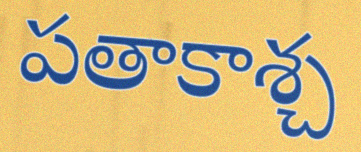
పతాకాశ్చ